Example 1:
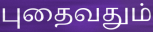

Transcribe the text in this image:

புதைவதும்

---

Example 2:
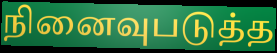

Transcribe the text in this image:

நினைவுபடுத்த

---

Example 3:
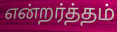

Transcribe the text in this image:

என்றர்த்தம்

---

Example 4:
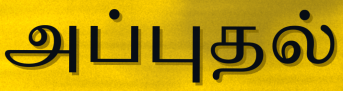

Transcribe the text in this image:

அப்புதல்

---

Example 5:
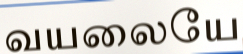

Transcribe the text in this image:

வயலையே